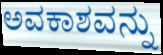
ಅವಕಾಶವನ್ನು